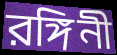
রঙ্গিনী